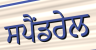
ਸਪੈਂਡਰੇਲ